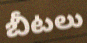
బీటలు